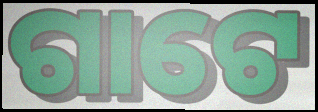
ଗାଟେ